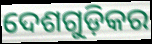
ଦେଶଗୁଡ଼ିକର